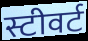
स्टीवर्ट